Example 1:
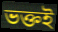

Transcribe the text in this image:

ভক্তই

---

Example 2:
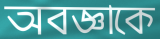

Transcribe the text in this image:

অবজ্ঞাকে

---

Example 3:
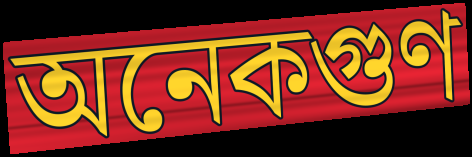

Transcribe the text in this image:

অনেকগুণ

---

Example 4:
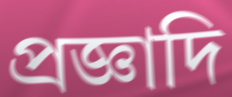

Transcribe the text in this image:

প্রজ্ঞাদি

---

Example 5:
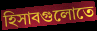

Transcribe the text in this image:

হিসাবগুলোতে